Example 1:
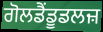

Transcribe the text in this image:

ਗੋਲਡੈਂਡੂਡਲਜ਼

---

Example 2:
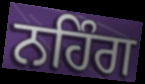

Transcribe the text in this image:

ਨਹਿੰਗ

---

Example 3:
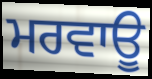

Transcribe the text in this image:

ਮਰਵਾਊ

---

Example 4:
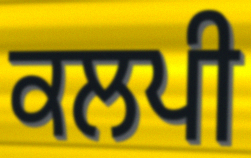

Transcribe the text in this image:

ਕਲਪੀ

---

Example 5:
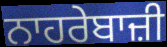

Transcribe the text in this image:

ਨਾਹਰੇਬਾਜ਼ੀ